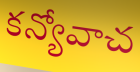
కన్యోవాచ